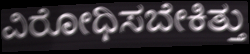
ವಿರೋಧಿಸಬೇಕಿತ್ತು